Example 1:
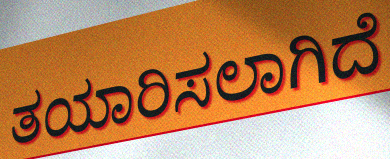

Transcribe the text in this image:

ತಯಾರಿಸಲಾಗಿದೆ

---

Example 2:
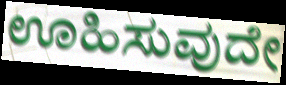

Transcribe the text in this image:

ಊಹಿಸುವುದೇ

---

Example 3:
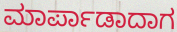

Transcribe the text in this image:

ಮಾರ್ಪಾಡಾದಾಗ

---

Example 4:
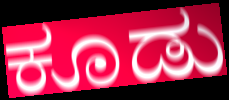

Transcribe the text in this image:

ಕೂಡು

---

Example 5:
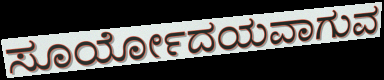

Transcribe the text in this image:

ಸೂರ್ಯೋದಯವಾಗುವ